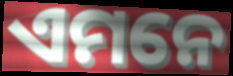
ଏମନେ